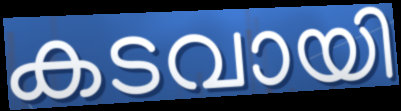
കടവായി